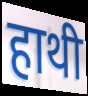
हाथी